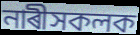
নাৰীসকলক